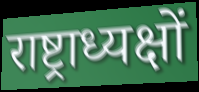
राष्ट्राध्यक्षों